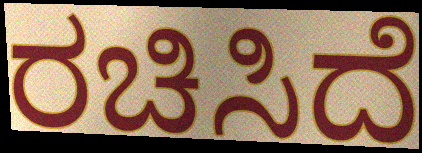
ರಚಿಸಿದೆ